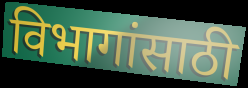
विभागांसाठी